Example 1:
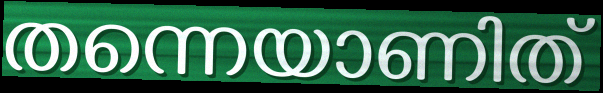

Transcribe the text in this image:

തന്നെയാണിത്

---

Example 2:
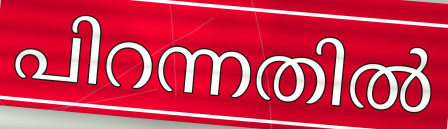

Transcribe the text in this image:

പിറന്നതിൽ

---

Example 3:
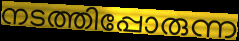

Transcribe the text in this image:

നടത്തിപ്പോരുന്ന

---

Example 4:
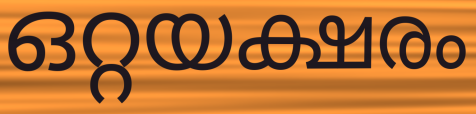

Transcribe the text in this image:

ഒറ്റയക്ഷരം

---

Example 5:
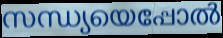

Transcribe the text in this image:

സന്ധ്യയെപ്പോൽ